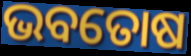
ଭବତୋଷ